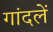
गांदलें